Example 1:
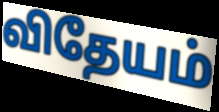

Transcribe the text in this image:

விதேயம்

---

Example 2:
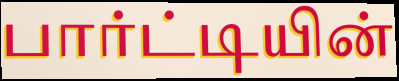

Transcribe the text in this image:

பார்ட்டியின்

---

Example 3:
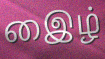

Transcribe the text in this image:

இைழ்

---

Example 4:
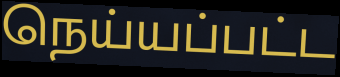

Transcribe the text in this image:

நெய்யப்பட்ட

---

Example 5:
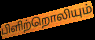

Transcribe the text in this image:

பிளிற்றொலியும்